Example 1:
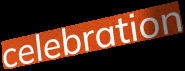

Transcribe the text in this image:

celebration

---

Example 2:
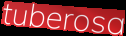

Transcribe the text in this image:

tuberosa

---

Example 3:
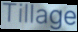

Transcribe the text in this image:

Tillage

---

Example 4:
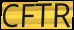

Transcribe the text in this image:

CFTR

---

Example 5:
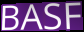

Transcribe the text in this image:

BASF